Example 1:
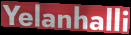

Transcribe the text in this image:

Yelanhalli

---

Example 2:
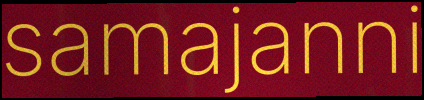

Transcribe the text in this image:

samajanni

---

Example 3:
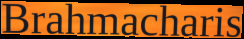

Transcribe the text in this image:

Brahmacharis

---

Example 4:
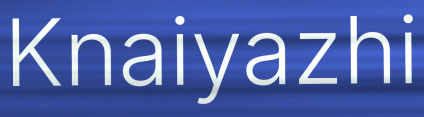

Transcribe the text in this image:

Knaiyazhi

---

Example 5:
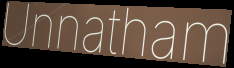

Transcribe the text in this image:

Unnatham